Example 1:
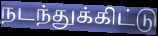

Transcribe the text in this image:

நடந்துக்கிட்டு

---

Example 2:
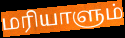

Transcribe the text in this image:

மரியாளும்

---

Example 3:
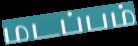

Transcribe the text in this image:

மடப்பம்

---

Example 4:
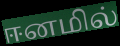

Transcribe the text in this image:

ஈனமில்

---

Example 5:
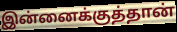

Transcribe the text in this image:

இன்னைக்குத்தான்